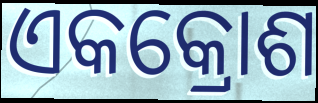
ଏକକ୍ରୋଶ